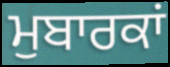
ਮੁਬਾਰਕਾਂ